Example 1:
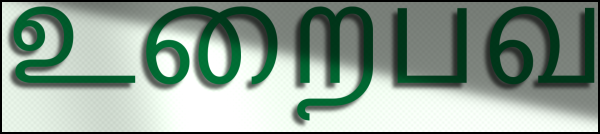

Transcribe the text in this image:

உறைபவ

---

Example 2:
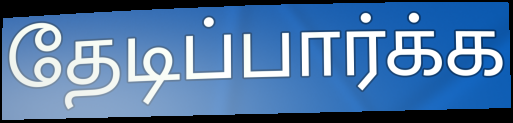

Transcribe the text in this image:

தேடிப்பார்க்க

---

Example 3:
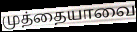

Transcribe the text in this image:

முத்தையாவை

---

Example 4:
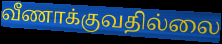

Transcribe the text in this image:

வீணாக்குவதில்லை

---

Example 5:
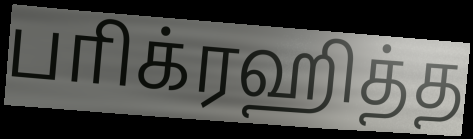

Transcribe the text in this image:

பரிக்ரஹித்த